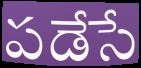
పడేసే